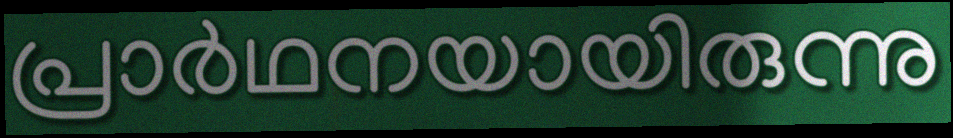
പ്രാർഥനയായിരുന്നു